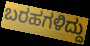
ಬರಹಗಳಿದ್ದು